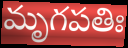
మృగపతిః